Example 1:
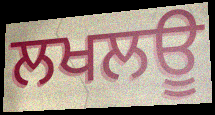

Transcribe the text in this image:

ਲਖਲਊ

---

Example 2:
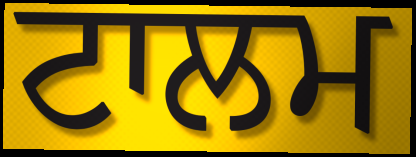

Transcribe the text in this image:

ਟਾਲਮ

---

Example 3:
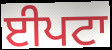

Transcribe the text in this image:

ਈਪਟਾ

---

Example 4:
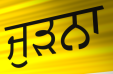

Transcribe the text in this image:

ਜੁੜਨਾ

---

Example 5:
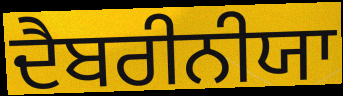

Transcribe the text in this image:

ਦੈਬਰੀਨੀਯਾ